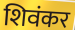
शिवंकर